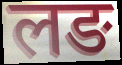
लङ